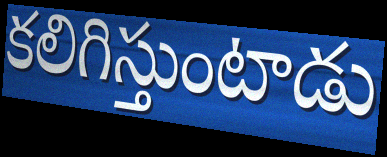
కలిగిస్తుంటాడు